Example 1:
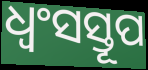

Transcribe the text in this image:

ଧ୍ୱଂସସ୍ତୂପ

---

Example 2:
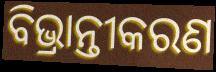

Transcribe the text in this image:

ବିଭ୍ରାନ୍ତୀକରଣ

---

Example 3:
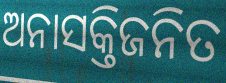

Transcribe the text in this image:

ଅନାସକ୍ତିଜନିତ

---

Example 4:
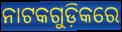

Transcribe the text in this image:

ନାଟକଗୁଡ଼ିକରେ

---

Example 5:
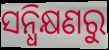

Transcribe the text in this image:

ସନ୍ଧିକ୍ଷଣରୁ